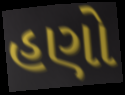
હણો